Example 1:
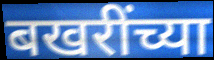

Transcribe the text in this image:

बखरींच्या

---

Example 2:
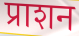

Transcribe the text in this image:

प्राशन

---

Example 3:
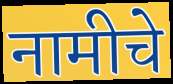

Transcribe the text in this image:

नामीचे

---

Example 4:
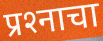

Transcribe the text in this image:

प्रश्नाचा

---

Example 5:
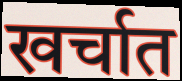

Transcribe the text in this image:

खर्चात